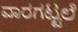
ವಾರಗಟ್ಟಲೆ